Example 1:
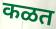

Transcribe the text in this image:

कळत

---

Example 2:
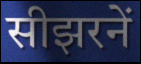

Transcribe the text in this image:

सीझरनें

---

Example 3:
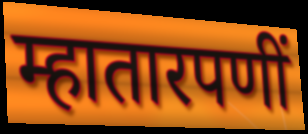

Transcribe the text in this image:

म्हातारपणीं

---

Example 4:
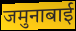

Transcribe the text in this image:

जमुनाबाई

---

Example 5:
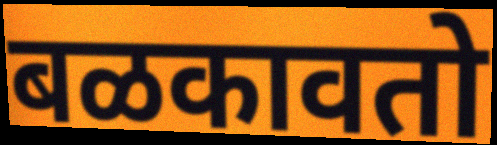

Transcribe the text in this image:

बळकावतो